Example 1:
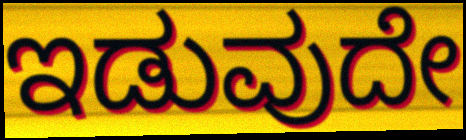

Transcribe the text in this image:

ಇಡುವುದೇ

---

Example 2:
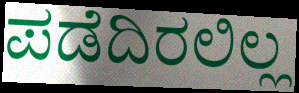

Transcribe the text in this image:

ಪಡೆದಿರಲಿಲ್ಲ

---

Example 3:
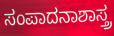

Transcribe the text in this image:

ಸಂಪಾದನಾಶಾಸ್ತ್ರ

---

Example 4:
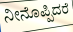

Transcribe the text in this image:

ನೀನೊಪ್ಪಿದರೆ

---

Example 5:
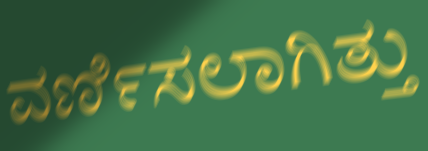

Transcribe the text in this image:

ವರ್ಣಿಸಲಾಗಿತ್ತು